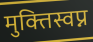
मुक्तिस्वप्न